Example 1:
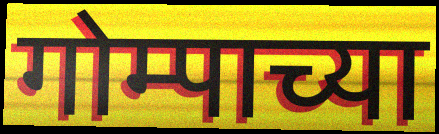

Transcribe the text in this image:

गोम्पाच्या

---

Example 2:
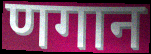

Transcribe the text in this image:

णगान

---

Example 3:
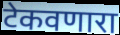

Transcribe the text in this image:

टेकवणारा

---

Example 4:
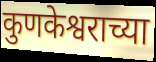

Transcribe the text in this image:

कुणकेश्वराच्या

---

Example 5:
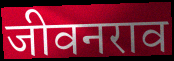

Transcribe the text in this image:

जीवनराव